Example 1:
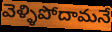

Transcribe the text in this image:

వెళ్ళిపోదామనే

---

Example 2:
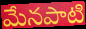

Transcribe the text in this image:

మేనపాటి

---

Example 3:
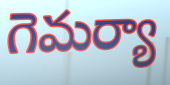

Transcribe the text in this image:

గెమర్యా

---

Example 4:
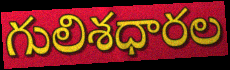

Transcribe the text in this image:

గులిశధారల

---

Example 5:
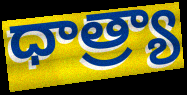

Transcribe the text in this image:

ధాత్ర్యా